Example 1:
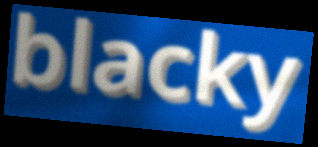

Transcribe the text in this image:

blacky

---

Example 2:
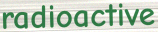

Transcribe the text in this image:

radioactive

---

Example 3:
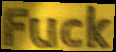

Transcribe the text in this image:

Fuck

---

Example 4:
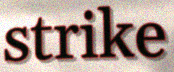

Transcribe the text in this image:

strike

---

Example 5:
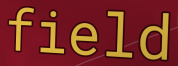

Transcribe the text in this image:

field